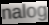
nalog